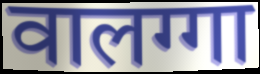
वालग्गा